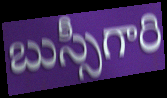
బుస్సీగారి